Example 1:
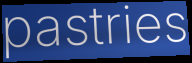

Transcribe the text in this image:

pastries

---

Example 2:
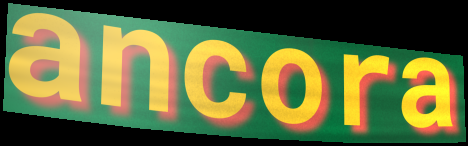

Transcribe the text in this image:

ancora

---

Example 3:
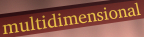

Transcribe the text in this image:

multidimensional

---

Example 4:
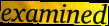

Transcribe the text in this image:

examined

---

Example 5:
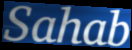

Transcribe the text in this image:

Sahab